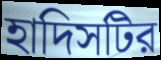
হাদিসটির